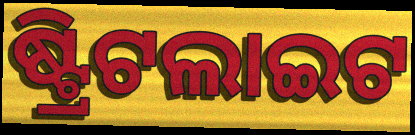
ଷ୍ଟ୍ରିଟଲାଇଟ